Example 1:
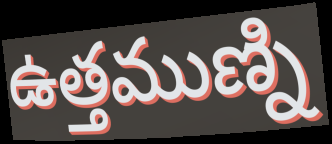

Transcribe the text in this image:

ఉత్తముణ్ని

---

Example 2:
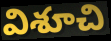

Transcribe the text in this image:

విశూచి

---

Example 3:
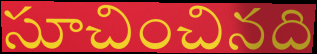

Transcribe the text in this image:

సూచించినది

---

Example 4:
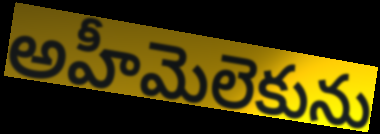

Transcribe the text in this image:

అహీమెలెకును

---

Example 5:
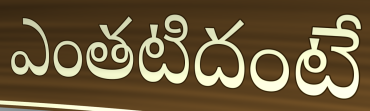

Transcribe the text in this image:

ఎంతటిదంటే